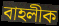
বাহলীক